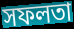
সফলতা